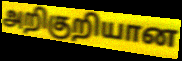
அறிகுறியான